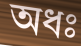
অধঃ